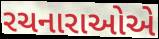
રચનારાઓએ